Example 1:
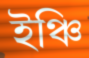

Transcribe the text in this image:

ইঞ্চি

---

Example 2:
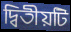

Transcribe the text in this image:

দ্বিতীয়টি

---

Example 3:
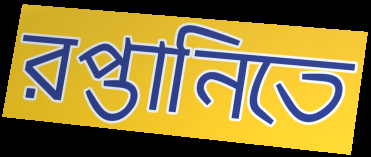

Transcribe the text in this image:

রপ্তানিতে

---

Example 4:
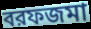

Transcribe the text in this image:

বরফজমা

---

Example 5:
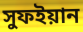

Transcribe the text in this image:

সুফইয়ান